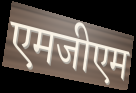
एमजीएम